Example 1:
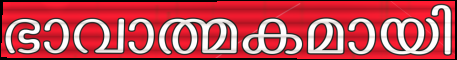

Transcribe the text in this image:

ഭാവാത്മകമായി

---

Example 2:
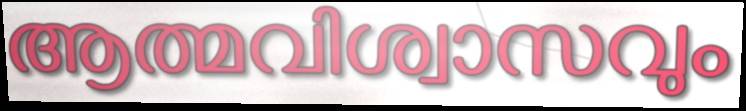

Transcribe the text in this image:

ആത്മവിശ്വാസവും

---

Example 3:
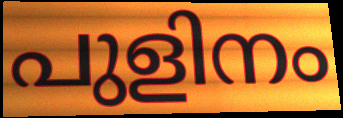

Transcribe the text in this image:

പുളിനം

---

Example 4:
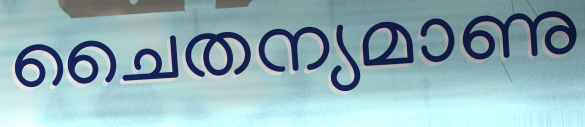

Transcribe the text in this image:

ചൈതന്യമാണു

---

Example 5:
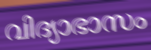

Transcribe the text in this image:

വിദ്യാഭാസം